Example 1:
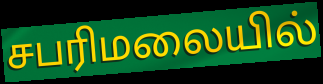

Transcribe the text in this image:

சபரிமலையில்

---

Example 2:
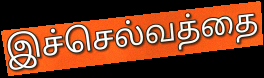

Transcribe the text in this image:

இச்செல்வத்தை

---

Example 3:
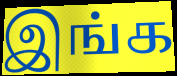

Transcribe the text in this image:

இங்க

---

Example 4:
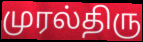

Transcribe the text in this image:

முரல்திரு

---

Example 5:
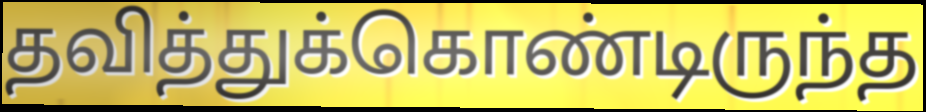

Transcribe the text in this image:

தவித்துக்கொண்டிருந்த